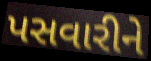
પસવારીને